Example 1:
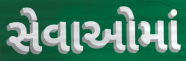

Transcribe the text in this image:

સેવાઓમાં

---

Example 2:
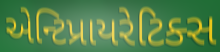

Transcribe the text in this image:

એન્ટિપ્રાયરેટિક્સ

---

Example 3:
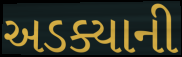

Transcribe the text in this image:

અડક્યાની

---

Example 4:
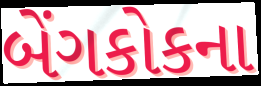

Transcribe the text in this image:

બેંગકોકના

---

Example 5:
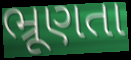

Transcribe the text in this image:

ભ્રૂણતા